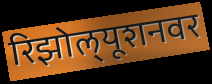
रिझोल्यूशनवर